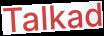
Talkad